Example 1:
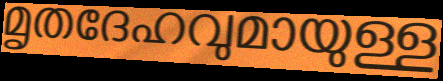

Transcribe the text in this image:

മൃതദേഹവുമായുള്ള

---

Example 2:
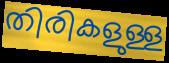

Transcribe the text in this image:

തിരികളുള്ള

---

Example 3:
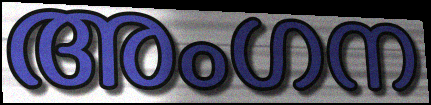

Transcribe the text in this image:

അംഗന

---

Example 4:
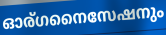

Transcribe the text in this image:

ഓര്ഗനൈസേഷനും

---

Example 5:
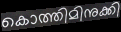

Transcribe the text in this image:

കൊത്തിമിനുക്കി